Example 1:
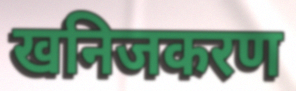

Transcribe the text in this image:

खनिजकरण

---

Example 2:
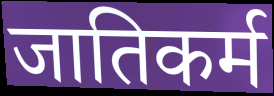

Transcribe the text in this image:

जातिकर्म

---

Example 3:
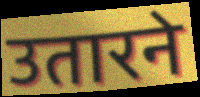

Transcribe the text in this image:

उतारने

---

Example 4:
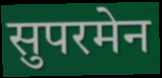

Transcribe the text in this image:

सुपरमेन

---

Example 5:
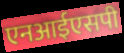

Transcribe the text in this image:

एनआईएसपी